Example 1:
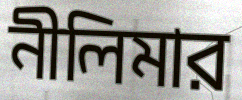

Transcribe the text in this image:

নীলিমার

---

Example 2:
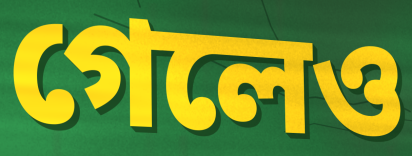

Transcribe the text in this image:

গেলেও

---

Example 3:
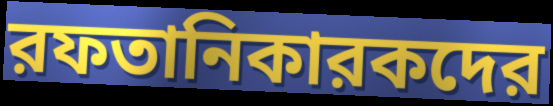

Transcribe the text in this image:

রফতানিকারকদের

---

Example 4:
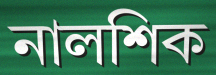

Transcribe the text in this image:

নালশিক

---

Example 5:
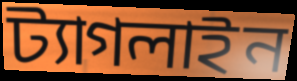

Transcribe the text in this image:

ট্যাগলাইন